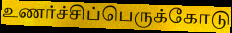
உணர்ச்சிப்பெருக்கோடு